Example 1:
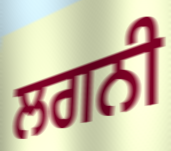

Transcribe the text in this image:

ਲਗਨੀ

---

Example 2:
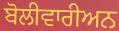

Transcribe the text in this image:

ਬੋਲੀਵਾਰੀਅਨ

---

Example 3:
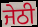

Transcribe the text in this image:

ਜੇਠੀ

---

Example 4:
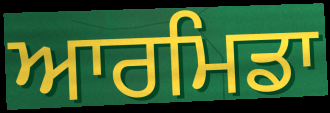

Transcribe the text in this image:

ਆਰਮਿਡਾ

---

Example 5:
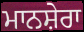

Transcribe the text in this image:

ਮਾਨਸ਼ੇਰਾ